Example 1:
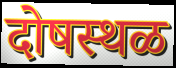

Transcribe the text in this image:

दोषस्थळ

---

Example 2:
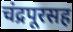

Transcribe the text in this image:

चंद्रपूरसह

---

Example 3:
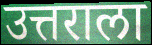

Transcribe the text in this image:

उत्तराला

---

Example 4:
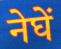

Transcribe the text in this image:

नेघें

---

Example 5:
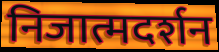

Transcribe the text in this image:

निजात्मदर्शन